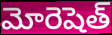
మోరెషెత్